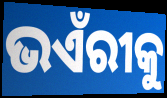
ଭଏଁରୀକୁ